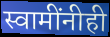
स्वामींनीही